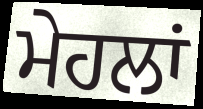
ਮੇਹਲਾਂ